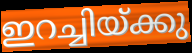
ഇറച്ചിയ്ക്കു